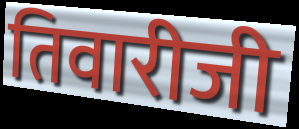
तिवारीजी